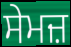
ਸੇਮਜ਼